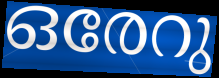
ഒരേറു